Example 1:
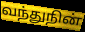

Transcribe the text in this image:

வந்துநின்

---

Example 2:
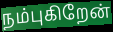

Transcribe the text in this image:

நம்புகிறேன்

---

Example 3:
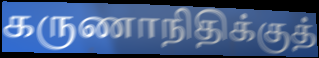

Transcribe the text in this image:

கருணாநிதிக்குத்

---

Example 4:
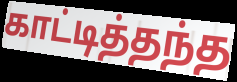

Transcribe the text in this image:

காட்டித்தந்த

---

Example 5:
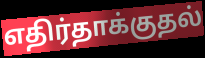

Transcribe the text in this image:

எதிர்தாக்குதல்